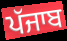
ਪੱਜਾਬ